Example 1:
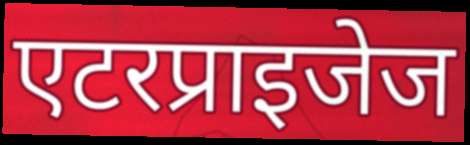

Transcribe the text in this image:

एटरप्राइजेज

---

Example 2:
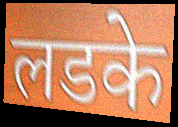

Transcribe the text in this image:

लडके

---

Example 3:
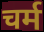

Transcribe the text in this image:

चर्म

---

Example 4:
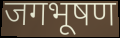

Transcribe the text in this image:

जगभूषण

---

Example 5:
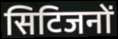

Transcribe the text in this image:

सिटिजनों